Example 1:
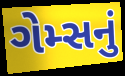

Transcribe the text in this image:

ગેમ્સનું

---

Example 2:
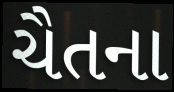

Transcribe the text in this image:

ચૈતના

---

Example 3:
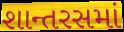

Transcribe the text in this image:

શાન્તરસમાં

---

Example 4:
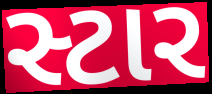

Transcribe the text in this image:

સ્ટાર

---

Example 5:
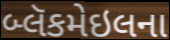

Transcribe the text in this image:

બ્લૅકમેઇલના